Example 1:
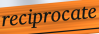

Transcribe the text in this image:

reciprocate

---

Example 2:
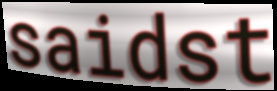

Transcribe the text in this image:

saidst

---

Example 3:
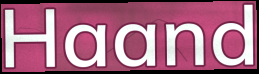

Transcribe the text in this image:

Haand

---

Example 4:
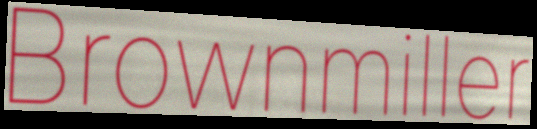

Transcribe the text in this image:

Brownmiller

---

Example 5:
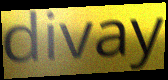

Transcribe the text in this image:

divay